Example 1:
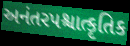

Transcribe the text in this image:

અનંતરપશ્ચાત્કૃતિક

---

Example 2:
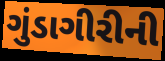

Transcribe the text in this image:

ગુંડાગીરીની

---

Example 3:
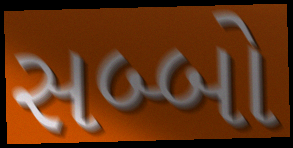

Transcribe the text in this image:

સબ્બો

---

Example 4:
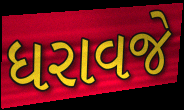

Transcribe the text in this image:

ધરાવજે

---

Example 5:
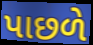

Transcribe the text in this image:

પાછળે